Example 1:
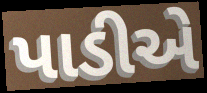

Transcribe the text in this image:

પાડીએ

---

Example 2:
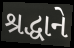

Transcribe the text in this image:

શ્રદ્ધાને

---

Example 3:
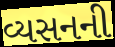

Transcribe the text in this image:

વ્યસનની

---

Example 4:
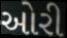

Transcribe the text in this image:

ઓરી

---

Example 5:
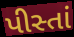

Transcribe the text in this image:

પીસ્તાં